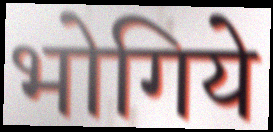
भोगिये